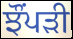
ਝੌਂਪੜੀ